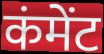
कंमेंट